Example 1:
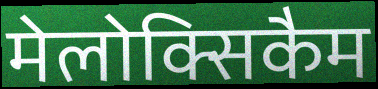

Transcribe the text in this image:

मेलोक्सिकैम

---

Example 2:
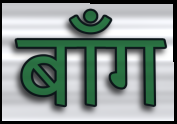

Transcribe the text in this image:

बाँग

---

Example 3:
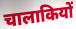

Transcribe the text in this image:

चालाकियों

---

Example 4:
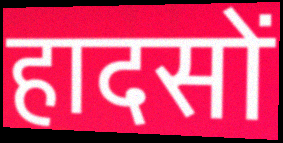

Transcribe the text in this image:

हादसों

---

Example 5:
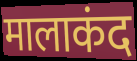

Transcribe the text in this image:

मालाकंद